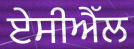
ਏਸੀਐੱਲ